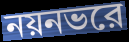
নয়নভরে